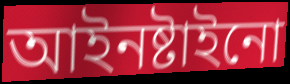
আইনষ্টাইনো